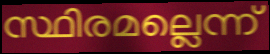
സ്ഥിരമല്ലെന്ന്